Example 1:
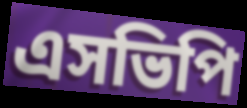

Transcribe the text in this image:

এসভিপি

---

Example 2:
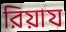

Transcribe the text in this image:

রিয়ায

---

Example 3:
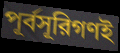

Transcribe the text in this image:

পূর্বসূরিগণই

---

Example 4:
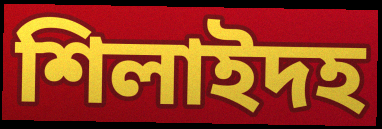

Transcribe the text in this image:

শিলাইদহ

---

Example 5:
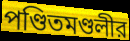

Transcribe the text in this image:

পণ্ডিতমণ্ডলীর